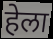
हेला